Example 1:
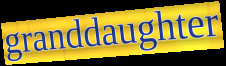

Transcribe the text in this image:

granddaughter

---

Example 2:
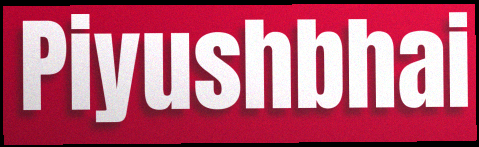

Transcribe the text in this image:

Piyushbhai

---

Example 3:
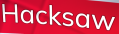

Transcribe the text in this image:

Hacksaw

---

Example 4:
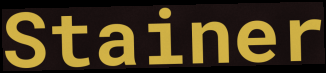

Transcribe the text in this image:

Stainer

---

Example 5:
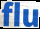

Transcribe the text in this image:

flu